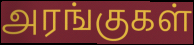
அரங்குகள்